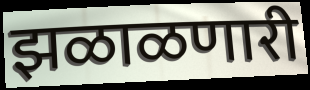
झळाळणारी